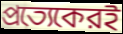
প্রত্যেকেরই